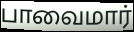
பாவைமார்